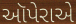
ઑપેરાએ